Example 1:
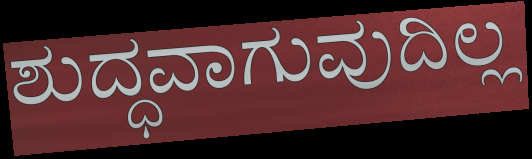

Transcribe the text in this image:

ಶುದ್ಧವಾಗುವುದಿಲ್ಲ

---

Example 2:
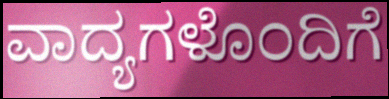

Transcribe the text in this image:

ವಾದ್ಯಗಳೊಂದಿಗೆ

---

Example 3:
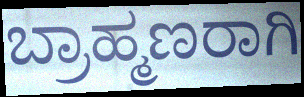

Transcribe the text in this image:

ಬ್ರಾಹ್ಮಣರಾಗಿ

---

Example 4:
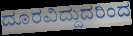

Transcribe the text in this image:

ದೂರವಿದ್ದುದರಿಂದ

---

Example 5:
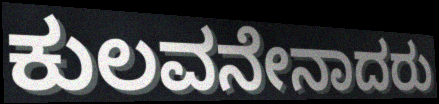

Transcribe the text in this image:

ಕುಲವನೇನಾದರು